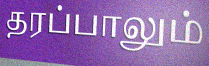
தரப்பாலும்